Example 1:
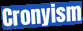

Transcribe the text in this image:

Cronyism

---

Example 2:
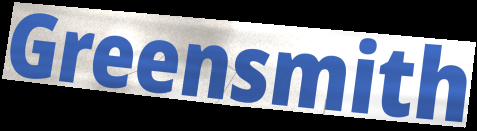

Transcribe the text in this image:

Greensmith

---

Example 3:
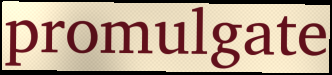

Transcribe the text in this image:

promulgate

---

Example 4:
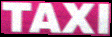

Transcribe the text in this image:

TAXI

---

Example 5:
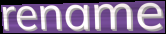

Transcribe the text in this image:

rename